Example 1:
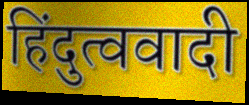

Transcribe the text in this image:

हिंदुत्ववादी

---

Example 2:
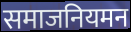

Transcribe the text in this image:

समाजनियमन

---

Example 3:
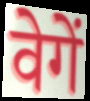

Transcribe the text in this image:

वेगें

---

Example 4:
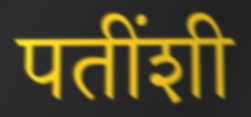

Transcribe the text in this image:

पतींशी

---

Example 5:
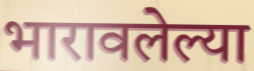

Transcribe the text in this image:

भारावलेल्या